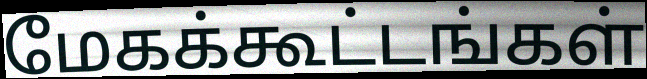
மேகக்கூட்டங்கள்